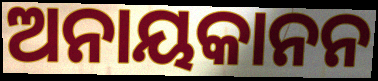
ଅନାୟକାନନ